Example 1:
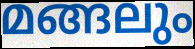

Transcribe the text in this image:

മങ്ങലും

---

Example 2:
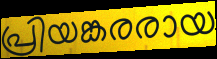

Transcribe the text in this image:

പ്രിയങ്കരരായ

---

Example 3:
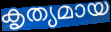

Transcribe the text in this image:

കൃത്യമായ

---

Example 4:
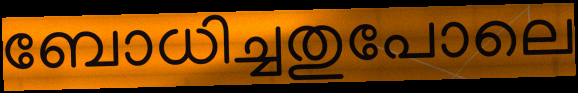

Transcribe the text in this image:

ബോധിച്ചതുപോലെ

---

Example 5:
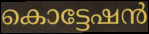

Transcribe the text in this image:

കൊട്ടേഷൻ